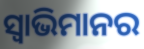
ସ୍ଵାଭିମାନର